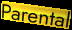
Parental